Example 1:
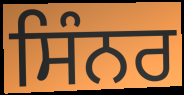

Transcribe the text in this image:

ਸਿੰਨਰ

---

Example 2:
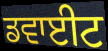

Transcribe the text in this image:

ਡਵਾਈਟ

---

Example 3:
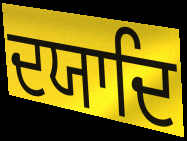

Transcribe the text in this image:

ਦਯਾਦਿ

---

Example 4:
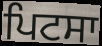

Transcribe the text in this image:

ਪਿਟਸਾ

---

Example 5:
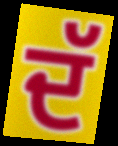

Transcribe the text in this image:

ਦੱ